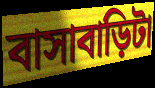
বাসাবাড়িটা